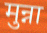
मुन्ना